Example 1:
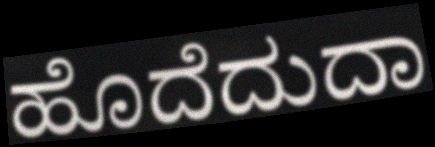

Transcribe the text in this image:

ಹೊದೆದುದಾ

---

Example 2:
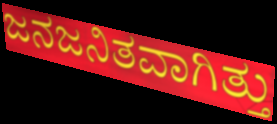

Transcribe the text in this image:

ಜನಜನಿತವಾಗಿತ್ತು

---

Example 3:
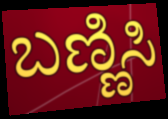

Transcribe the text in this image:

ಬಣ್ಣಿಸಿ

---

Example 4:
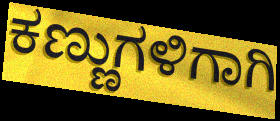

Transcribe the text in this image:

ಕಣ್ಣುಗಳಿಗಾಗಿ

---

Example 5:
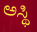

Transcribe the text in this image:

ಅಸ್ಥಿ